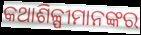
କଥାଶିଳ୍ପୀମାନଙ୍କର